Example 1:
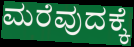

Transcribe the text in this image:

ಮರೆವುದಕ್ಕೆ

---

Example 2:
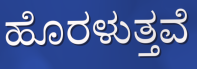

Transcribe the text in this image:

ಹೊರಳುತ್ತವೆ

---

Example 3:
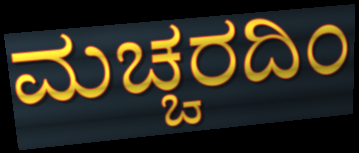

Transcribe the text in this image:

ಮಚ್ಚರದಿಂ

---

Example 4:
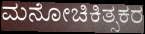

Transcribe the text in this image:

ಮನೋಚಿಕಿತ್ಸಕರ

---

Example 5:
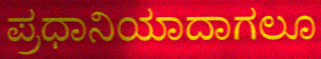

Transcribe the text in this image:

ಪ್ರಧಾನಿಯಾದಾಗಲೂ